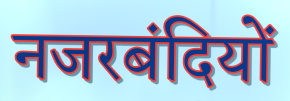
नजरबंदियों